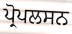
ਪ੍ਰੋਪਲਸਨ